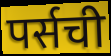
पर्सची